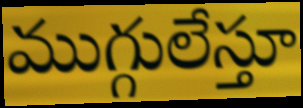
ముగ్గులేస్తూ